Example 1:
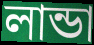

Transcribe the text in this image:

লান্ডা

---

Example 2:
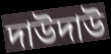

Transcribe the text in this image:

দাউদাউ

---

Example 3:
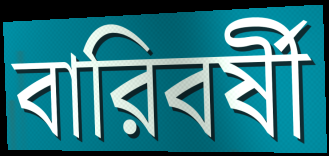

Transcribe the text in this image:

বারিবর্ষী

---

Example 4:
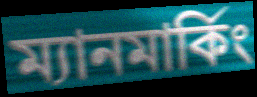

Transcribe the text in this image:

ম্যানমার্কিং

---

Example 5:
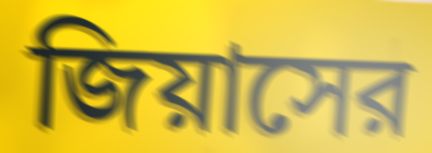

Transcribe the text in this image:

জিয়াসের